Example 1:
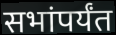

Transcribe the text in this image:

सभांपर्यंत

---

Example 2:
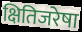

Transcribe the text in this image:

क्षितिजरेषा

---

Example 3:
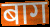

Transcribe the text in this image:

बाग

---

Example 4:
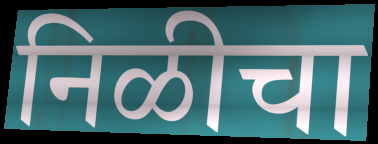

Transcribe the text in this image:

निळीचा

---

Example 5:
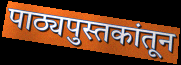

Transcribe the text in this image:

पाठ्यपुस्तकांतून